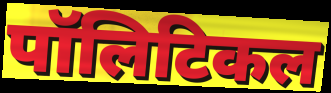
पॉलिटिकल